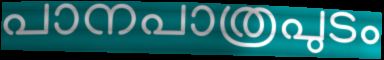
പാനപാത്രപുടം